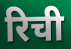
रिची